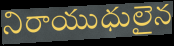
నిరాయుధులైన